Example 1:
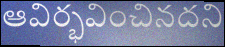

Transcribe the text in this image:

ఆవిర్భవించినదని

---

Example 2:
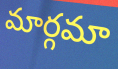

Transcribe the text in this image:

మార్గమా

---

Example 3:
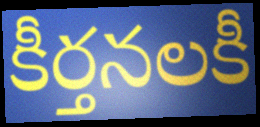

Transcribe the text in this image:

కీర్తనలకీ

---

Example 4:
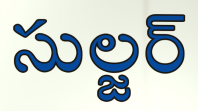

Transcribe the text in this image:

సుల్జర్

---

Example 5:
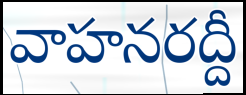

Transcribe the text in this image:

వాహనరద్దీ